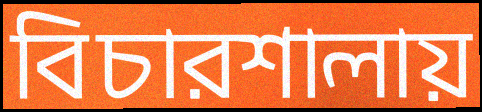
বিচারশালায়